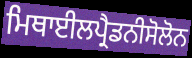
ਮਿਥਾਈਲਪ੍ਰੈਡਨੀਸੋਲੋਨ